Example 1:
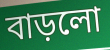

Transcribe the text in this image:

বাড়লো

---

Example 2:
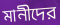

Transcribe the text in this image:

মানীদের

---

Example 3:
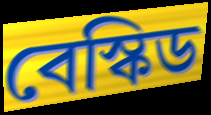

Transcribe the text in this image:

বেস্কিড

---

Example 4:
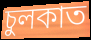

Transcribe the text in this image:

চুলকাত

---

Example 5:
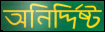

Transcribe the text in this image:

অনির্দ্দিষ্ট